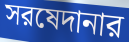
সরষেদানার